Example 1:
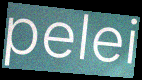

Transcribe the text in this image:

pelei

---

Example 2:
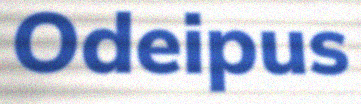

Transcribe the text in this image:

Odeipus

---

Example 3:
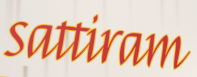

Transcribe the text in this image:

sattiram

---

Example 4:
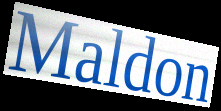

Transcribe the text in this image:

Maldon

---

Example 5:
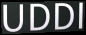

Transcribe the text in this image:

UDDI